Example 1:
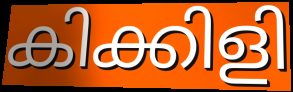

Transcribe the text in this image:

കിക്കിളി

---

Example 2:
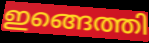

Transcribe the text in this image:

ഇങ്ങെത്തി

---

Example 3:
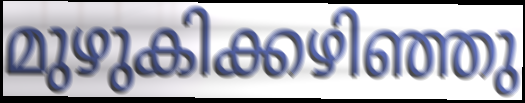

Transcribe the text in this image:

മുഴുകിക്കഴിഞ്ഞു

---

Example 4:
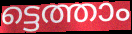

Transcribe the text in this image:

ട്ടെത്താം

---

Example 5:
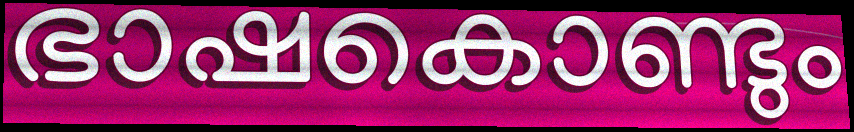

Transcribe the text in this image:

ഭാഷകൊണ്ടും